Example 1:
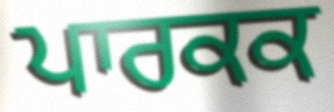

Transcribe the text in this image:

ਪਾਰਕਕ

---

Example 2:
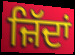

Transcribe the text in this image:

ਜ਼ਿੱਦਾਂ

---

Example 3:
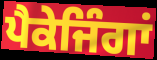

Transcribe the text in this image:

ਪੈਕੇਜਿੰਗਾਂ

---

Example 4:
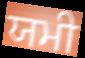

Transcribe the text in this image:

ਯਮੀ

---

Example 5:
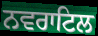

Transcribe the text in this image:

ਨਵਰਾਟਿਲ